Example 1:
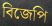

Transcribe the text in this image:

বিজেপি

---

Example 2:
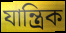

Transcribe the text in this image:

যান্ত্ৰিক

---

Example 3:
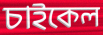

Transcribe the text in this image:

চাইকেল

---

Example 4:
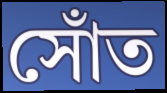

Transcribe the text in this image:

সোঁত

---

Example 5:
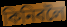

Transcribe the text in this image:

কিনিবলৈ